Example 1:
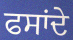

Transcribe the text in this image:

ਫਸਾਂਦੇ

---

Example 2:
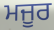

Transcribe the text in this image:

ਮਜੂਰ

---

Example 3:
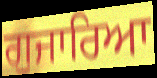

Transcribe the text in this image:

ਗੁਜਾਰਿਆ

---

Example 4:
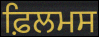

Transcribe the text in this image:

ਫ਼ਿਲਮਸ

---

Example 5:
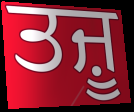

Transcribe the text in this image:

ਤਜ਼ੂ